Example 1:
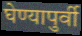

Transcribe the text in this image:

घेण्यापुर्वी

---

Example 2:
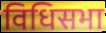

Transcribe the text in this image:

विधिसभा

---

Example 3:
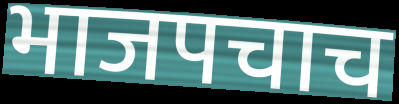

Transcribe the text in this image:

भाजपचाच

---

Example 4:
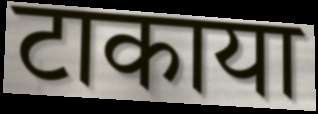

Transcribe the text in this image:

टाकाया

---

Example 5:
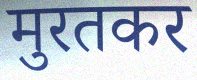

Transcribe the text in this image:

मुरतकर